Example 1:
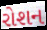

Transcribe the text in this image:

રોશન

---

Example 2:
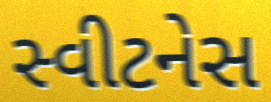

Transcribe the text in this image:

સ્વીટનેસ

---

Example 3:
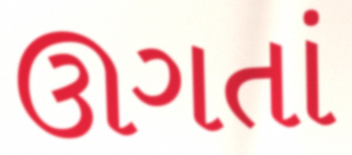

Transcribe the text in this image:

ઊગતાં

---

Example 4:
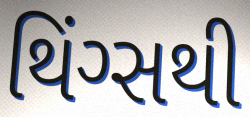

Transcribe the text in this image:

થિંગ્સથી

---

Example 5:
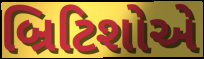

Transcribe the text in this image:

બ્રિટિશોએ